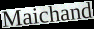
Maichand